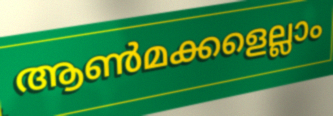
ആൺമക്കളെല്ലാം